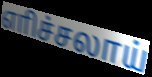
எரிச்சலாய்